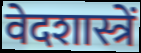
वेदशास्त्रें